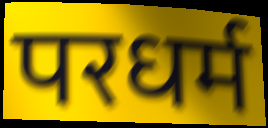
परधर्म